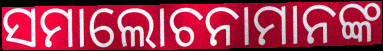
ସମାଲୋଚନାମାନଙ୍କ